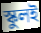
স্কুলই